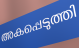
അകപ്പെടുത്തി